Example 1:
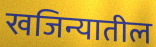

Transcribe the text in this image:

खजिन्यातील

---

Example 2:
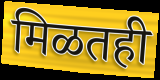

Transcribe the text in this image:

मिळतही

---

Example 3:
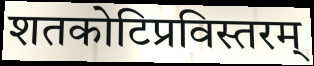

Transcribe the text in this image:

शतकोटिप्रविस्तरम्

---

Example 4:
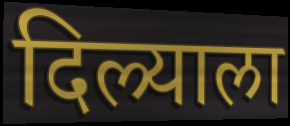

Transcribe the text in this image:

दिल्याला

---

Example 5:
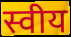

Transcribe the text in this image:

स्वीय